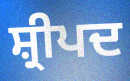
ਸ਼੍ਰੀਪਦ